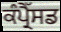
ਕੰਪ੍ਰੈੱਸਡ